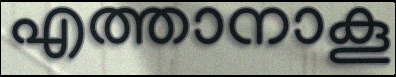
എത്താനാകൂ